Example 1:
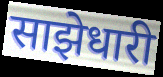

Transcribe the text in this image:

साझेधारी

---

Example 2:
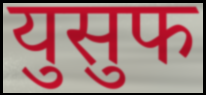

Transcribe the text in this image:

युसुफ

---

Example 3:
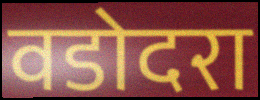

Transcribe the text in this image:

वडोदरा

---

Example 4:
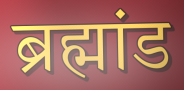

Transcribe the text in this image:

ब्रह्मांड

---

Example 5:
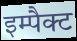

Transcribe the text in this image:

इम्पैक्ट